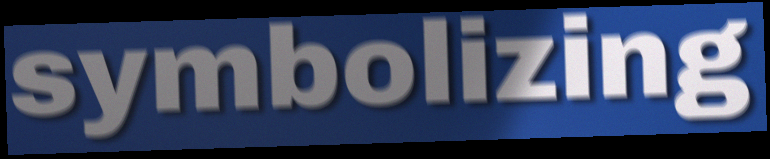
symbolizing